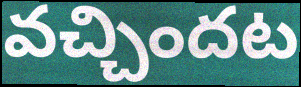
వచ్చిందట